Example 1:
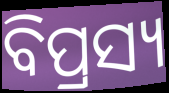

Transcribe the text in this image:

ବିପ୍ରସ୍ୟ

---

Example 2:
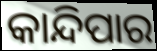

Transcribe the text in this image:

କାନ୍ଦିପାର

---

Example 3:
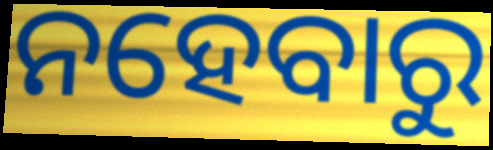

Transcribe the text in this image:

ନହେବାରୁ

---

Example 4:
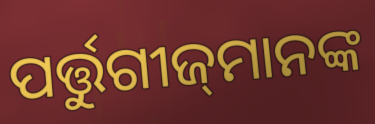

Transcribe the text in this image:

ପର୍ତ୍ତୁଗୀଜ୍‌ମାନଙ୍କ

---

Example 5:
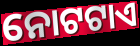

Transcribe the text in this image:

ନୋଟଟାଏ